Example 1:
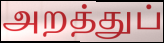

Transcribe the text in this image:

அறத்துப்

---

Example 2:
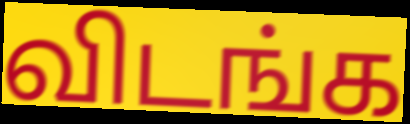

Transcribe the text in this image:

விடங்க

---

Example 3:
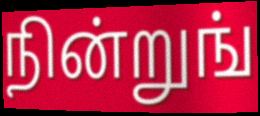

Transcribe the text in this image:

நின்றுங்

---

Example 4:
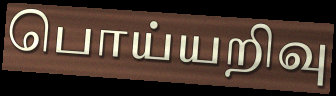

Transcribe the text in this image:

பொய்யறிவு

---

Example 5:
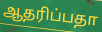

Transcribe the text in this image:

ஆதரிப்பதா